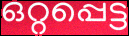
ഒറ്റപ്പെട്ട